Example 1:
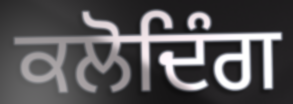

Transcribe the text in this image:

ਕਲੋਦਿੰਗ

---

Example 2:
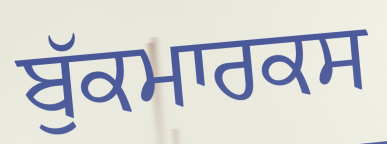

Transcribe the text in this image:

ਬੁੱਕਮਾਰਕਸ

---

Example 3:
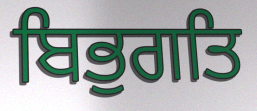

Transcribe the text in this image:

ਬਿਭੁਗਤਿ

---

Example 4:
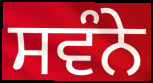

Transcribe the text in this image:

ਸਵੰਨੇ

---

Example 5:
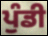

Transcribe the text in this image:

ਪੁੰਡੀ